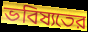
ভবিষ্যতের